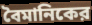
বৈমানিকের